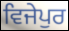
ਵਿਜੇਪੁਰ